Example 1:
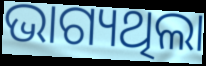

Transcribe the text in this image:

ଭାଗ୍ୟଥିଲା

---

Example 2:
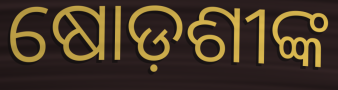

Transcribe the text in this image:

ଷୋଡ଼ଶୀଙ୍କ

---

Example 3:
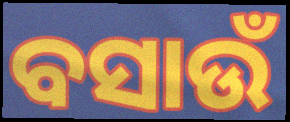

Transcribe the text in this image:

ବସାଉଁ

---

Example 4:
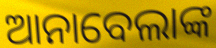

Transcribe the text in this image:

ଆନାବେଲାଙ୍କ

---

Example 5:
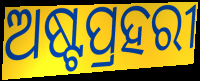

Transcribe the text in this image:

ଅଷ୍ଟପ୍ରହରୀ